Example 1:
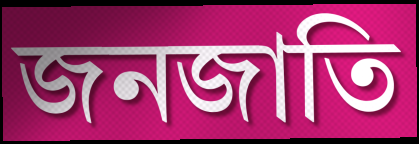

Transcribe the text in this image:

জনজাতি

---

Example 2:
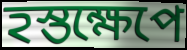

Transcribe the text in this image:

হস্তক্ষেপে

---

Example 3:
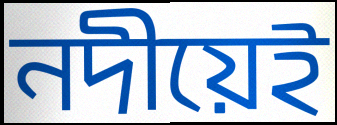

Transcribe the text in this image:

নদীয়েই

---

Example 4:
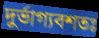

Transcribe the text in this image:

দুৰ্ভাগ্যবশতঃ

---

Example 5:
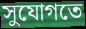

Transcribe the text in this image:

সুযোগতে